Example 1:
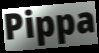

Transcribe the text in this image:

Pippa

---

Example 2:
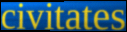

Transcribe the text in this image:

civitates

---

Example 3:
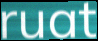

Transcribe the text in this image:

ruat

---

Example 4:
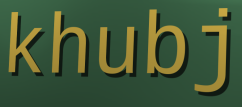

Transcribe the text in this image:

khubj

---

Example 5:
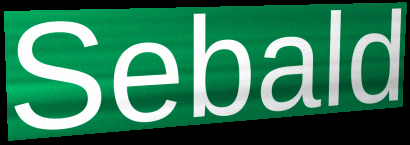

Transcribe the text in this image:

Sebald